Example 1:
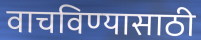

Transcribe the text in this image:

वाचविण्यासाठी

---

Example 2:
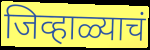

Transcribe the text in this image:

जिव्हाळ्याचं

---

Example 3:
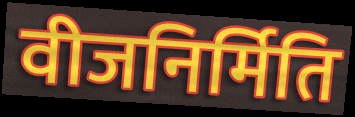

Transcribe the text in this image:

वीजनिर्मिति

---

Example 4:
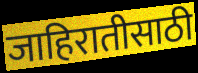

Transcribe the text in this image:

जाहिरातीसाठी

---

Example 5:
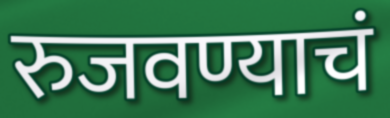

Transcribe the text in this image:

रुजवण्याचं